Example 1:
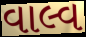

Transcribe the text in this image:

વાલ્વ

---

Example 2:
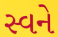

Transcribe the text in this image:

સ્વને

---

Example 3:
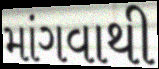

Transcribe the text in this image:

માંગવાથી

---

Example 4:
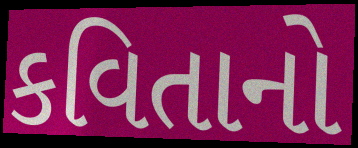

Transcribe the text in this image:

કવિતાનો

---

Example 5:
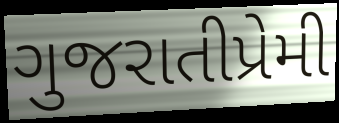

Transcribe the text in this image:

ગુજરાતીપ્રેમી